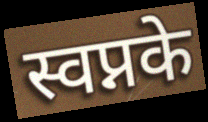
स्वप्नके